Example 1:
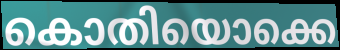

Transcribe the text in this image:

കൊതിയൊക്കെ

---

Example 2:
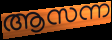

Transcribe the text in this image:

ആസന്ന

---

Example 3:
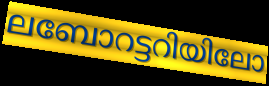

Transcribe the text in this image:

ലബോറട്ടറിയിലോ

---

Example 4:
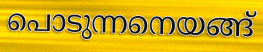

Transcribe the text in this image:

പൊടുന്നനെയങ്ങ്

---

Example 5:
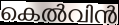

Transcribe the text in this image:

കെൽവിൻ